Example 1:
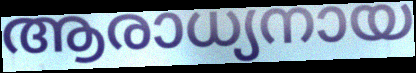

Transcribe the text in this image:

ആരാധ്യനായ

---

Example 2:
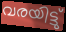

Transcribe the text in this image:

വരയിട്ടു്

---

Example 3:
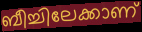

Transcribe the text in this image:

ബീച്ചിലേക്കാണ്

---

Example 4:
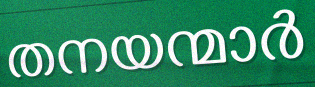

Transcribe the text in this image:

തനയന്മാർ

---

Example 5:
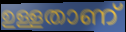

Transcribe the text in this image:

ഉള്ളതാണ്